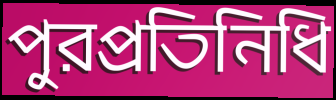
পুরপ্রতিনিধি